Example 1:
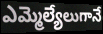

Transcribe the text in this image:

ఎమ్మెల్యేలుగానే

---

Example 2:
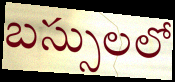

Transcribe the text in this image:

బస్సులలో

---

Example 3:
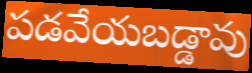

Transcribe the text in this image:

పడవేయబడ్డావు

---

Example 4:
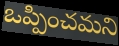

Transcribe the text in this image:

ఒప్పించమని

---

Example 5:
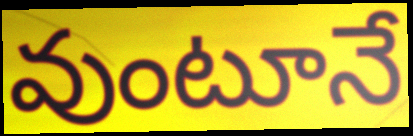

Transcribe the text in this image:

వుంటూనే